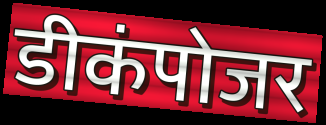
डीकंपोजर